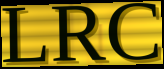
LRC